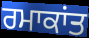
ਰਮਾਕਾਂਤ